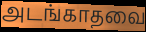
அடங்காதவை